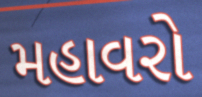
મહાવરો